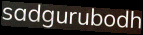
sadgurubodh